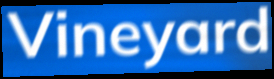
Vineyard